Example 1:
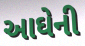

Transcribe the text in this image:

આઘેની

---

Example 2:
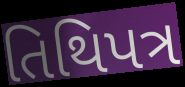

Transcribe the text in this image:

તિથિપત્ર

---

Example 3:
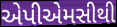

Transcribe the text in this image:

એપીએમસીથી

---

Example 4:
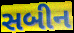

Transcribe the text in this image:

સબીન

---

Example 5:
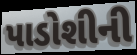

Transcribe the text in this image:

પાડોશીની